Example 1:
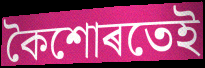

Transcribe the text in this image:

কৈশোৰতেই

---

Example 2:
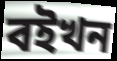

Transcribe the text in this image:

বইখন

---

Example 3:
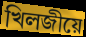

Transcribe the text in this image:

খিলজীয়ে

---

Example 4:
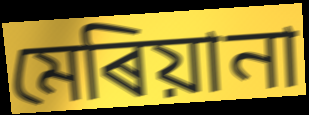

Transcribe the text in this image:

মেৰিয়ানা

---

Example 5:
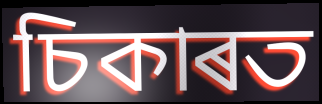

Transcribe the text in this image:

চিকাৰত